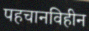
पहचानविहीन